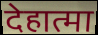
देहात्मा